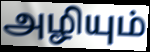
அழியும்